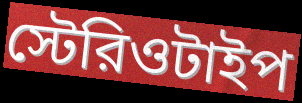
স্টেরিওটাইপ